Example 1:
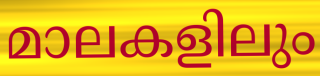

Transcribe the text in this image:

മാലകളിലും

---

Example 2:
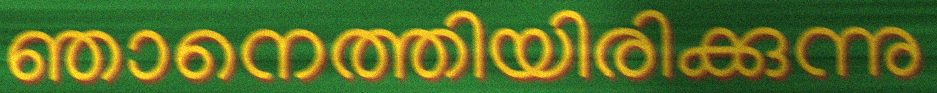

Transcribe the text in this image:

ഞാനെത്തിയിരിക്കുന്നു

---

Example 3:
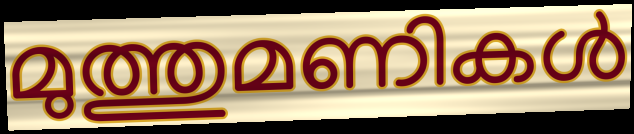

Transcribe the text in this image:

മുത്തുമണികൾ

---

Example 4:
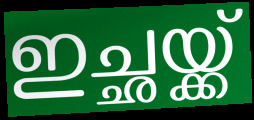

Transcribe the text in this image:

ഇച്ഛയ്ക്ക്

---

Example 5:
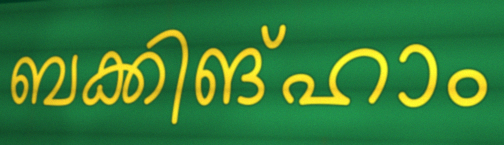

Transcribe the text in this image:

ബക്കിങ്ഹാം